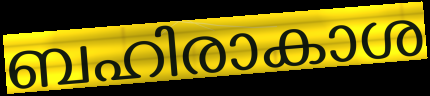
ബഹിരാകാശ